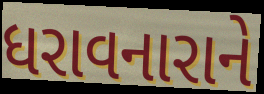
ધરાવનારાને